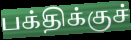
பக்திக்குச்